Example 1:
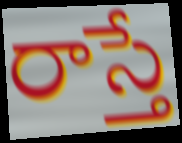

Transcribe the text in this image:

రాస్తే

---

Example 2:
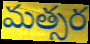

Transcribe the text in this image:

మత్సర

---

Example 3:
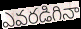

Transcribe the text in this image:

ఎవరడిగినా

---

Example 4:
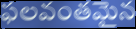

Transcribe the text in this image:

ఫలవంతమైన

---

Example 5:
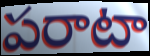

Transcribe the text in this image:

పరాటా